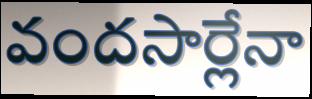
వందసార్లేనా